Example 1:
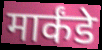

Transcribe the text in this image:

मार्कंडे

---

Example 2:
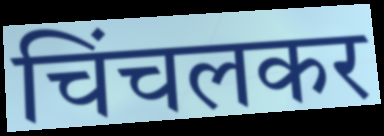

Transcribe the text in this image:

चिंचलकर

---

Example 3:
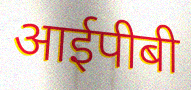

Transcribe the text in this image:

आईपीबी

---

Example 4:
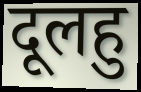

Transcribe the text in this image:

दूलहु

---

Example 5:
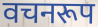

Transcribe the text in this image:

वचनरूप